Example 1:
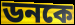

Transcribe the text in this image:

ডনকে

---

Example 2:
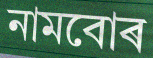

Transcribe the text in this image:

নামবোৰ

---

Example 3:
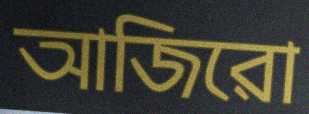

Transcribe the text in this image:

আজিৱো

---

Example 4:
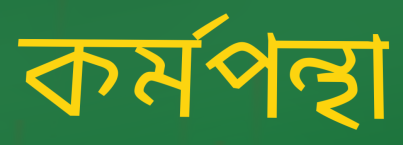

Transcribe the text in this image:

কৰ্মপন্থা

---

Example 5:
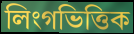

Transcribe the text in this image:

লিংগভিত্তিক